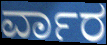
ರ್ವಾರ